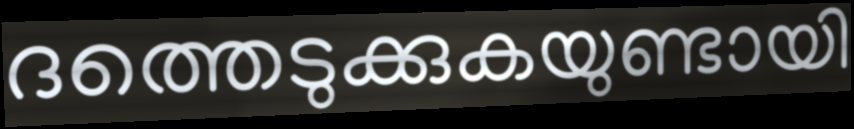
ദത്തെടുക്കുകയുണ്ടായി